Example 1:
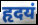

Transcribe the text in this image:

हृदयं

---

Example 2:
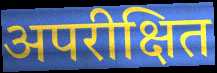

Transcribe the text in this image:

अपरीक्षित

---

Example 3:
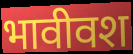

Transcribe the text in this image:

भावीवश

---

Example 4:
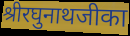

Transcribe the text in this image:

श्रीरघुनाथजीका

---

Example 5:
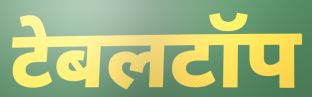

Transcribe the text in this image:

टेबलटॉप